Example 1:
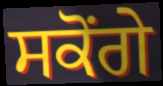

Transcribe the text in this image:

ਸਕੋਂਗੇ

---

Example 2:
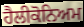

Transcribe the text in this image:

ਹੈਲੀਕੋਨਿਅਮ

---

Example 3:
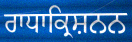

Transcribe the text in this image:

ਰਾਧਾਕ੍ਰਿਸ਼ਨਨ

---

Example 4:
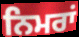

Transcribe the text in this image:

ਨਿਮਰਾਂ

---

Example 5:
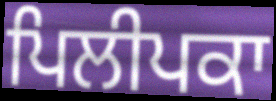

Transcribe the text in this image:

ਪਿਲੀਪਕਾ